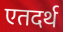
एतदर्थ